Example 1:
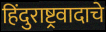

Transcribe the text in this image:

हिंदुराष्ट्रवादाचे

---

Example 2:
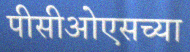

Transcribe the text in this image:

पीसीओएसच्या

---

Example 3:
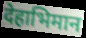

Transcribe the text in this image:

देहाभिमान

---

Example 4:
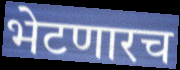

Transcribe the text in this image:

भेटणारच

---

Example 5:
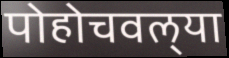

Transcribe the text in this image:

पोहोचवल्या